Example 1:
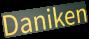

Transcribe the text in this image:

Daniken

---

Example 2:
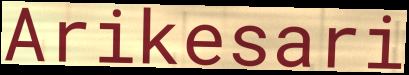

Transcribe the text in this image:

Arikesari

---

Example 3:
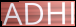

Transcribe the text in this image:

ADHI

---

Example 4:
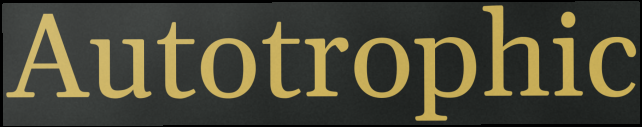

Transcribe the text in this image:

Autotrophic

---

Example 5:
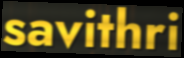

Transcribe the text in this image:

savithri